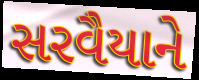
સરવૈયાને